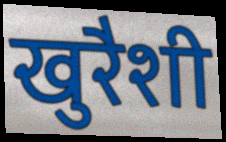
खुरैशी